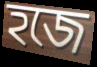
হজে